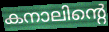
കനാലിന്റെ